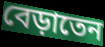
বেড়াতেন